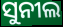
ସୁନୀଲ